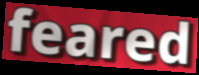
feared